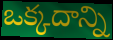
ఒక్కదాన్ని